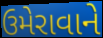
ઉમેરાવાને